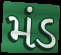
મંડ